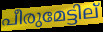
പീരുമേട്ടില്